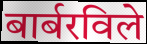
बार्बरविले